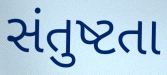
સંતુષ્ટતા